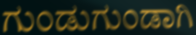
ಗುಂಡುಗುಂಡಾಗಿ